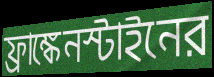
ফ্রাঙ্কেনস্টাইনের